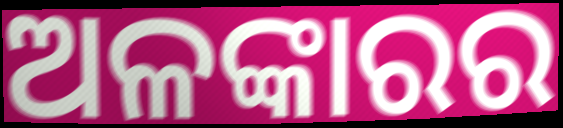
ଅଳଙ୍କାରର